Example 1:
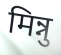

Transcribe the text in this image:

मिन्नु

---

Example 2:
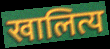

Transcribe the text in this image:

खालित्य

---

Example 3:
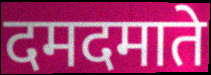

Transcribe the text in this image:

दमदमाते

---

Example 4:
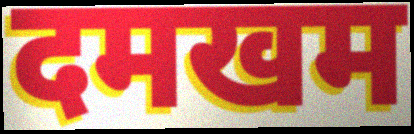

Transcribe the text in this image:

दमखम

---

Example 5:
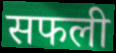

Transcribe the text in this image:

सफली